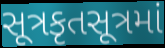
સૂત્રકૃતસૂત્રમાં